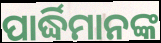
ପାର୍ଦ୍ଧିମାନଙ୍କ